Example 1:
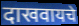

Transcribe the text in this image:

दाखवायचे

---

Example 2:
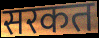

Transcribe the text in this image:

सरकत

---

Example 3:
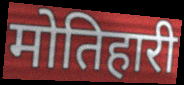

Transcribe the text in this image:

मोतिहारी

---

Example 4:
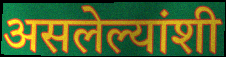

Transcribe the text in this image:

असलेल्यांशी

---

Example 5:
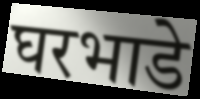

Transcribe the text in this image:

घरभाडे